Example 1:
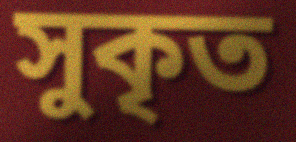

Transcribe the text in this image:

সুকৃত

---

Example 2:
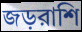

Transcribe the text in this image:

জড়রাশি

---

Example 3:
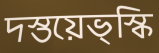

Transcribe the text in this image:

দস্তয়েভ্স্কি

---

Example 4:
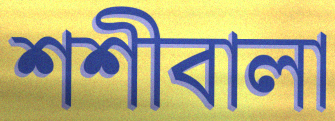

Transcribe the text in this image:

শশীবালা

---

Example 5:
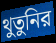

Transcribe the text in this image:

থুতুনির